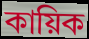
কায়িক